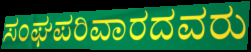
ಸಂಘಪರಿವಾರದವರು